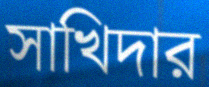
সাখিদার